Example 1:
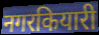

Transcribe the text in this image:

नगरकियारी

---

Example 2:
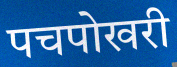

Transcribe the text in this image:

पचपोखरी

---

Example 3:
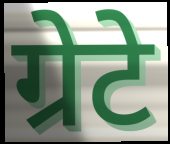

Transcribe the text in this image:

ग्रेटे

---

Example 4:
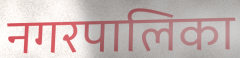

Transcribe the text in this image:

नगरपालिका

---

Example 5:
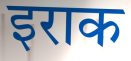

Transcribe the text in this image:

इराक